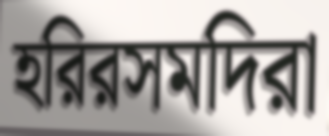
হরিরসমদিরা